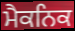
ਮੈਕਨਿਕ